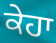
ਕੇਹਾ